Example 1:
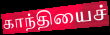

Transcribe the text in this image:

காந்தியைச்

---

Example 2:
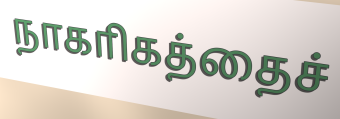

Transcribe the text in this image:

நாகரிகத்தைச்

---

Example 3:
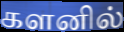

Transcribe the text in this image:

களனில்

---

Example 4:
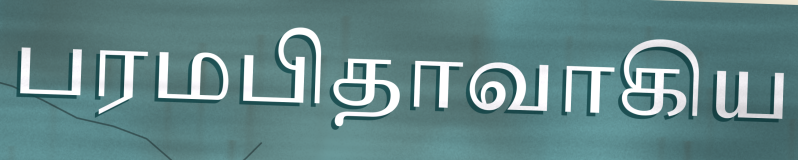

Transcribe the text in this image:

பரமபிதாவாகிய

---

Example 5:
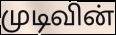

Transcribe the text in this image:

முடிவின்